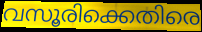
വസൂരിക്കെതിരെ